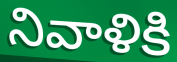
నివాళికి